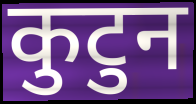
कुटुन